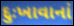
દુઃખાવાનાં